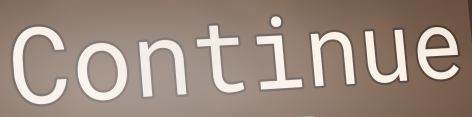
Continue